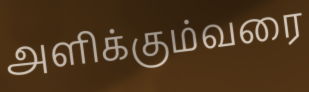
அளிக்கும்வரை